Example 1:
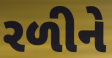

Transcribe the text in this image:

રળીને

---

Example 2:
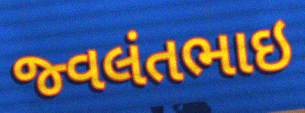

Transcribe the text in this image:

જ્વલંતભાઇ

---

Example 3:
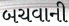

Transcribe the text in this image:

બચવાની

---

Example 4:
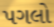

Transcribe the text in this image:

પગલો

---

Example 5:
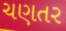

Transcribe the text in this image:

ચણતર